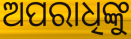
ଅପରାଧିଙ୍କୁ